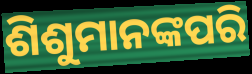
ଶିଶୁମାନଙ୍କପରି